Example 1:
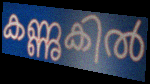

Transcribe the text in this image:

കണ്ണുകിൽ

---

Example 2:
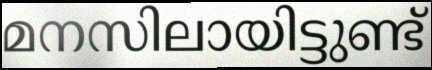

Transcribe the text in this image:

മനസിലായിട്ടുണ്ട്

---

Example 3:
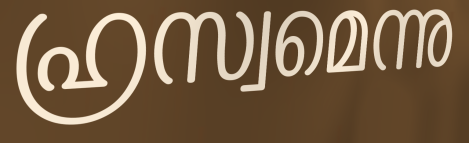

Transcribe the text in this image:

ഹ്രസ്വമെന്നു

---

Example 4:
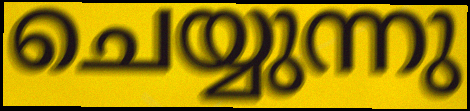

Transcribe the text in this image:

ചെയ്യുന്നു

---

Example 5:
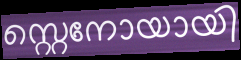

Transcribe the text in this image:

സ്റ്റെനോയായി